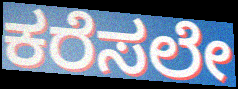
ಕರೆಸಲೇ